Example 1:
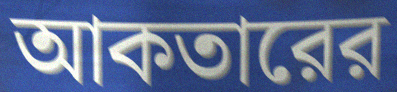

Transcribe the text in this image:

আকতারের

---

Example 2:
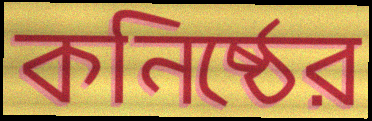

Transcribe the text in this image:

কনিষ্ঠের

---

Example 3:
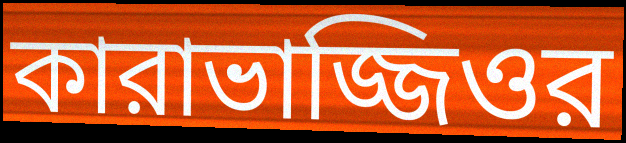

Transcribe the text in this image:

কারাভাজ্জিওর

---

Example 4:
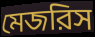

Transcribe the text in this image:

মেজরিস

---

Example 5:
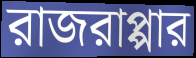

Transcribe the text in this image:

রাজরাপ্পার